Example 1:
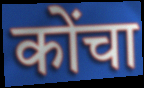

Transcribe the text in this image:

कोंचा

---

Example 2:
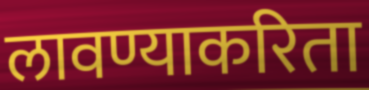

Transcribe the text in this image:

लावण्याकरिता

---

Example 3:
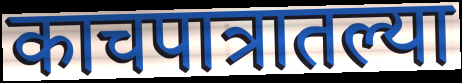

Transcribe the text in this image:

काचपात्रातल्या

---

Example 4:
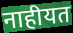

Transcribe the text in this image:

नाहीयत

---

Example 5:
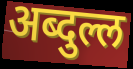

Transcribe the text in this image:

अब्दुल्ल